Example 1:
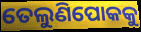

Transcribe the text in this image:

ତେଲୁଣିପୋକକୁ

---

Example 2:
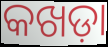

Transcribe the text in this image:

କଖଡ଼ା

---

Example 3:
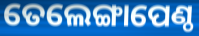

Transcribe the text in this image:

ତେଲେଙ୍ଗାପେଣ୍ଠ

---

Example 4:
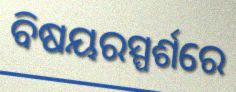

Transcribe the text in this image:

ବିଷୟରସ୍ପର୍ଶରେ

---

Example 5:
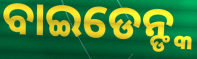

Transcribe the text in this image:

ବାଇଡେନ୍ଙ୍କ